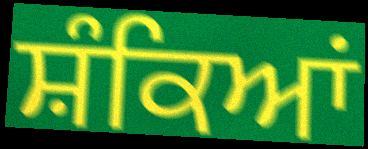
ਸ਼ੰਕਿਆਂ